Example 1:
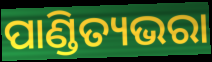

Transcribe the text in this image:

ପାଣ୍ଡିତ୍ୟଭରା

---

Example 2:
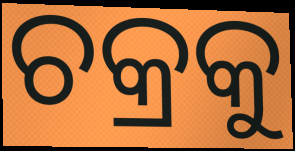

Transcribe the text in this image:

ଚକ୍ରକୁ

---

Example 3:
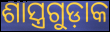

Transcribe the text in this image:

ଶାସ୍ତ୍ରଗୁଡ଼ାକ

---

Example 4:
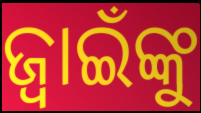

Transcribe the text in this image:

ଜ୍ବାଇଁଙ୍କୁ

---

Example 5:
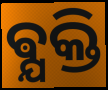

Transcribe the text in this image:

ଵ୍ଯକ୍ତି